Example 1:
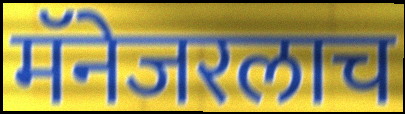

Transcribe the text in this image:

मॅनेजरलाच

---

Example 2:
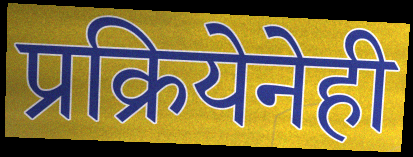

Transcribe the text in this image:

प्रक्रियेनेही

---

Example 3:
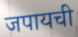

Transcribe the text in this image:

जपायची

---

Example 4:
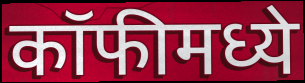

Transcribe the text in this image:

कॉफीमध्ये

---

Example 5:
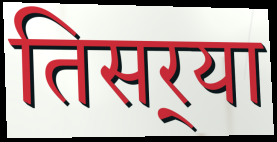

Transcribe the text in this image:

तिसर्या